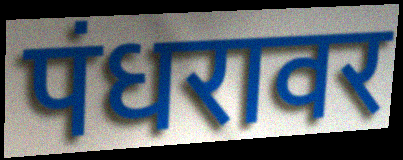
पंधरावर